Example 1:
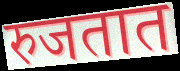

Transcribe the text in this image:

रुजतात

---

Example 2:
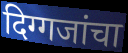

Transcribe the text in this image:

दिग्गजांचा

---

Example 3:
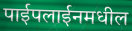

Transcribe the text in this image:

पाईपलाईनमधील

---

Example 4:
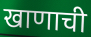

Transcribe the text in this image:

खाणाची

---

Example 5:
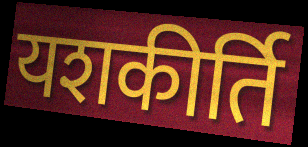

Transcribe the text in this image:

यशकीर्ति